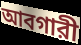
আবগারী